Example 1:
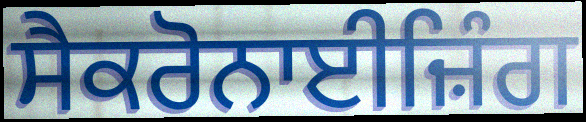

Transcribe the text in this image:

ਸੈਕਰੋਨਾਈਜ਼ਿੰਗ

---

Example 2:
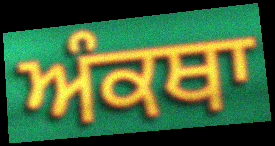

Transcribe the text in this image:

ਅੰਕਥਾ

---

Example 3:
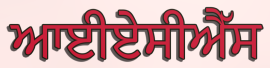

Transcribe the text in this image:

ਆਈਏਸੀਐੱਸ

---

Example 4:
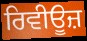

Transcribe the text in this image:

ਰਿਵੀਊਜ਼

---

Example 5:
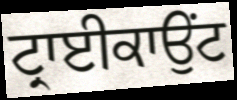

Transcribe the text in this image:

ਟ੍ਰਾਈਕਾਉਂਟ